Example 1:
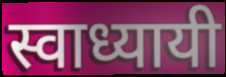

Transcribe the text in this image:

स्वाध्यायी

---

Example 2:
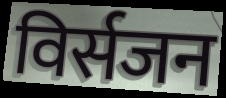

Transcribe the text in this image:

विर्सजन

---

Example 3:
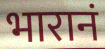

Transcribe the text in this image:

भारानं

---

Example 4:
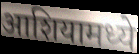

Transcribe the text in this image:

आशियामध्ये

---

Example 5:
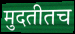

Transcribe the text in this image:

मुदतीतच